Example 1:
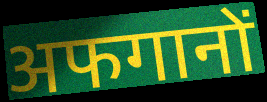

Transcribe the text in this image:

अफगानों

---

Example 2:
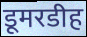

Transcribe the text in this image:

डूमरडीह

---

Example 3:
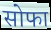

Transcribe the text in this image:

सोफा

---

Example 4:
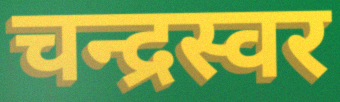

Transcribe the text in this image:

चन्द्रस्वर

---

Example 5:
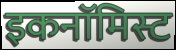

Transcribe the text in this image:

इकनॉमिस्‍ट